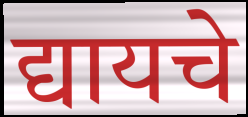
द्यायचे